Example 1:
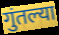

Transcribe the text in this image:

गुंतल्या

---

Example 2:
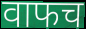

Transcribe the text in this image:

वाफच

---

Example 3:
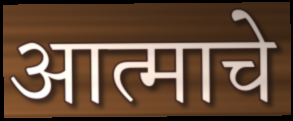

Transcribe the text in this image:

आत्माचे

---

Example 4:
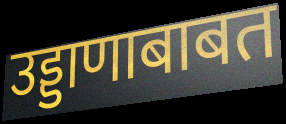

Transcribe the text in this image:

उड्डाणाबाबत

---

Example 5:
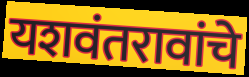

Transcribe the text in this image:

यशवंतरावांचे